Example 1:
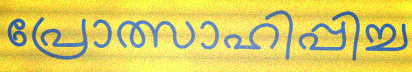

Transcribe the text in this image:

പ്രോത്സാഹിപ്പിച്ച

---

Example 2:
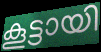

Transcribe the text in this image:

കൂട്ടായി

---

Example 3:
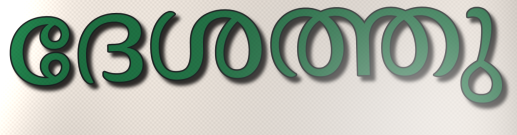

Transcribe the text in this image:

ദേശത്തു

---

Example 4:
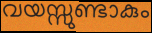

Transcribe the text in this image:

വയസ്സുണ്ടാകും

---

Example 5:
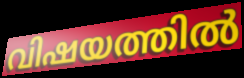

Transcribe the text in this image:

വിഷയത്തിൽ